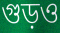
গুড়ও